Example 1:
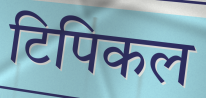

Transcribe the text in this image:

टिपिकल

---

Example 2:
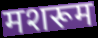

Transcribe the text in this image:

मशरूम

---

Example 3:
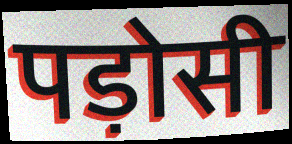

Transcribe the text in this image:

पड़ोसी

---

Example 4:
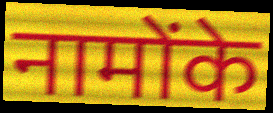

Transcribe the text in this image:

नामोंके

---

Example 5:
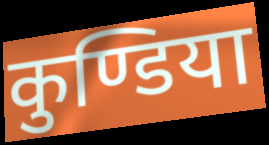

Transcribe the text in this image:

कुण्डिया